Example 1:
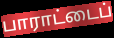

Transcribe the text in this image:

பாராட்டைப்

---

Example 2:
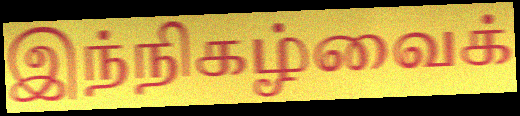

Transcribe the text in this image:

இந்நிகழ்வைக்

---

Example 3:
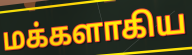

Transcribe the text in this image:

மக்களாகிய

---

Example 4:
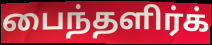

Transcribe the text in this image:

பைந்தளிர்க்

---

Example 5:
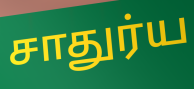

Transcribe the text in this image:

சாதுர்ய